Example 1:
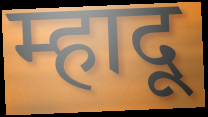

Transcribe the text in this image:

म्हादू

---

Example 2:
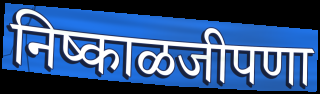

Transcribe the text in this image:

निष्काळजीपणा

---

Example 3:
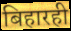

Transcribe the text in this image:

बिहारही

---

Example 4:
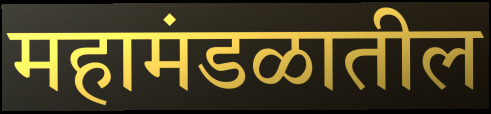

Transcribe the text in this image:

महामंडळातील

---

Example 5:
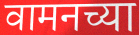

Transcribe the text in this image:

वामनच्या